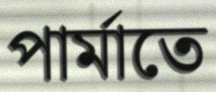
পার্মাতে